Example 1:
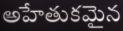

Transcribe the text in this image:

అహేతుకమైన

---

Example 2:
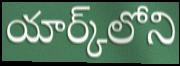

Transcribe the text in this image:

యార్క్‌లోని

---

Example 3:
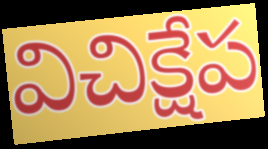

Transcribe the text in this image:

విచిక్షేప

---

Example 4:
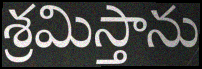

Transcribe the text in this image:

శ్రమిస్తాను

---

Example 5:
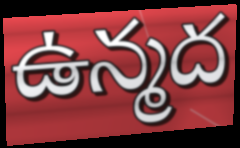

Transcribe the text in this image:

ఉన్మద